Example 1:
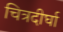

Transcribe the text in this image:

चित्रदीर्घा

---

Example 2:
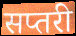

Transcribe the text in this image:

सप्तरी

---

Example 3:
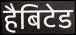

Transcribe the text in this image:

हैबिटेड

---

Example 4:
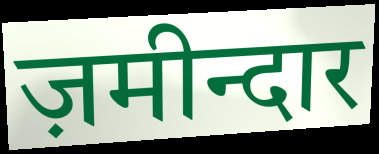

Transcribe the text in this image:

ज़मीन्दार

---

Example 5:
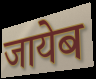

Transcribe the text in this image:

जायेब